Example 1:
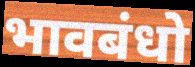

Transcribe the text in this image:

भावबंधो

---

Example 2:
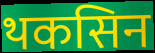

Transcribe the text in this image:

थकसिन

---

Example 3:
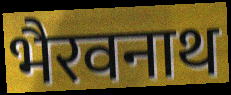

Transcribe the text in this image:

भैरवनाथ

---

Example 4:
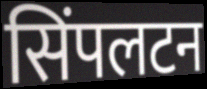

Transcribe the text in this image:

सिंपलटन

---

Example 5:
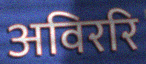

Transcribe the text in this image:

अविररि